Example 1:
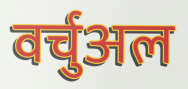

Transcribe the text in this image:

वर्चुअल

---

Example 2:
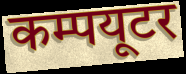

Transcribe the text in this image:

कम्पयूटर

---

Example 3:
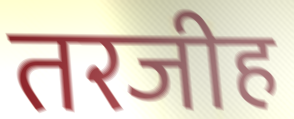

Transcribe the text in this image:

तरजीह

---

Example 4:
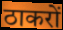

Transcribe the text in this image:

ठाकरों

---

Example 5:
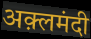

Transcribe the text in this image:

अक़्लमंदी